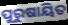
ପୁରୁଷାୟିତ